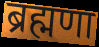
ब्रह्मणा